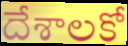
దేశాలకో